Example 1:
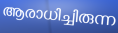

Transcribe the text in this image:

ആരാധിച്ചിരുന്ന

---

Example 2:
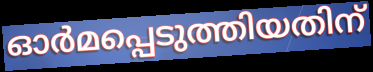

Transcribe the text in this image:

ഓർമപ്പെടുത്തിയതിന്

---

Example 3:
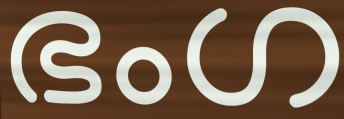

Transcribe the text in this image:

ഭംഗ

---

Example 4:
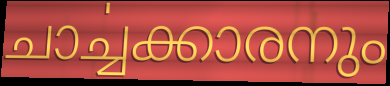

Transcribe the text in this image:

ചാൎച്ചക്കാരനും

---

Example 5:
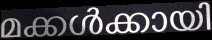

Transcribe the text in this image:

മക്കൾക്കായി